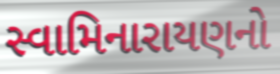
સ્વામિનારાયણનો